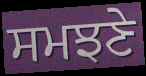
ਸਮਝਣੇ